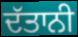
ਦੱਤਾਨੀ